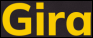
Gira